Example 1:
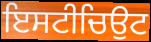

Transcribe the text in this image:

ਇਸਟੀਚਿਉਟ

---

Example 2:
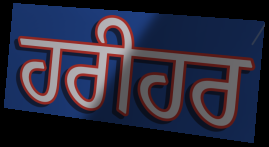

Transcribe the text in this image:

ਹਰੀਹਰ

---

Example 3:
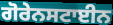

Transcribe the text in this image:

ਗੋਰੇਨਸਟਾਈਨ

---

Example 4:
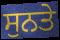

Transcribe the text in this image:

ਸੁਨਤੇ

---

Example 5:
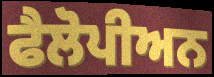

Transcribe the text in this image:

ਫੈਲੋਪੀਅਨ